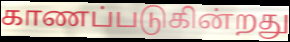
காணப்படுகின்றது